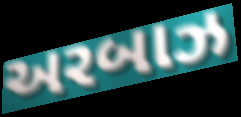
અરબાઝ